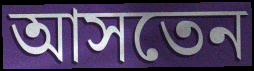
আসতেন